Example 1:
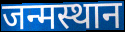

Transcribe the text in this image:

जन्मस्थान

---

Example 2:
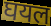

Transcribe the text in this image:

घयल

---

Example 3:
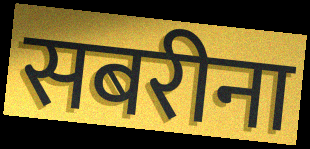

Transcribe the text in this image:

सबरीना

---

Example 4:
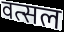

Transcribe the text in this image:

वत्सल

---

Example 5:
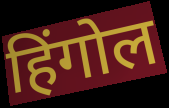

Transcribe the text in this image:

हिंगोल